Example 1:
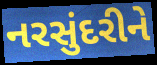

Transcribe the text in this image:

નરસુંદરીને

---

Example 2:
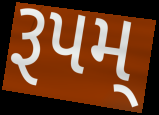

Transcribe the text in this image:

રૂપમ્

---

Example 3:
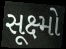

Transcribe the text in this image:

સૂક્ષ્મો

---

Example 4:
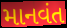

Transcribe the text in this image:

માનવંત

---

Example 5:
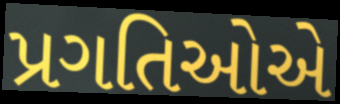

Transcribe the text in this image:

પ્રગતિઓએ